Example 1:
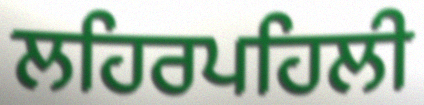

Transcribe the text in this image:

ਲਹਿਰਪਹਿਲੀ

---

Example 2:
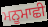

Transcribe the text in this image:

ਮਨੂਮਾਛੀ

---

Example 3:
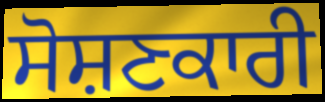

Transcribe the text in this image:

ਸੋਸ਼ਣਕਾਰੀ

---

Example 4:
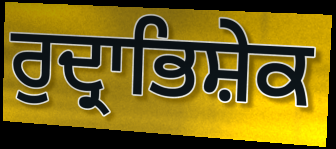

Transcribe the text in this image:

ਰੁਦ੍ਰਾਭਿਸ਼ੇਕ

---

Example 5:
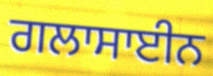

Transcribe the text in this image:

ਗਲਾਸਾਈਨ